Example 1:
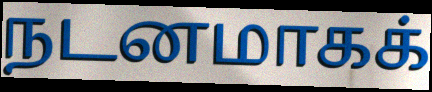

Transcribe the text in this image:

நடனமாகக்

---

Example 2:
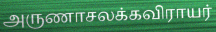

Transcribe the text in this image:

அருணாசலக்கவிராயர்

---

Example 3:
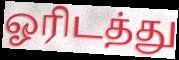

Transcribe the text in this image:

ஓரிடத்து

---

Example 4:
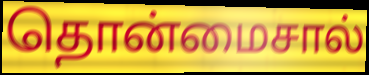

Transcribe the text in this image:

தொன்மைசால்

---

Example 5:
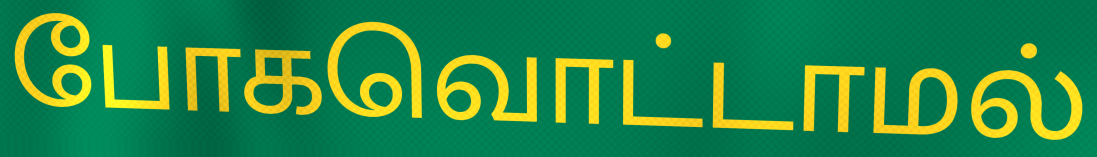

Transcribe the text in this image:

போகவொட்டாமல்